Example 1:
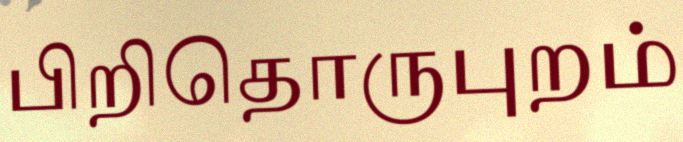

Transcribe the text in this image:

பிறிதொருபுறம்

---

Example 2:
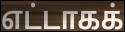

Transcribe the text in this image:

எட்டாகக்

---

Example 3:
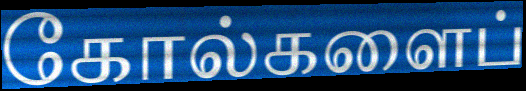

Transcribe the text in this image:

கோல்களைப்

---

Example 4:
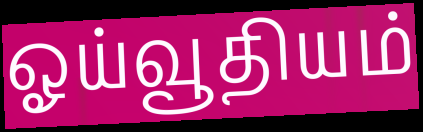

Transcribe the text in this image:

ஓய்வூதியம்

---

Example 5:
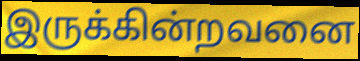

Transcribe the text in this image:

இருக்கின்றவனை